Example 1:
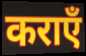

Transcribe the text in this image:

कराएँ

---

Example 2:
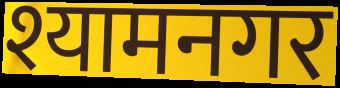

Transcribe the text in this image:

श्यामनगर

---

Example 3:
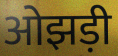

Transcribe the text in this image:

ओझड़ी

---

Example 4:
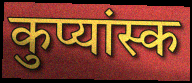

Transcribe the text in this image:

कुप्यांस्क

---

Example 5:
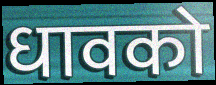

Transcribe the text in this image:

धावको